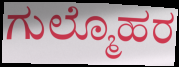
ಗುಲ್ಮೊಹರ